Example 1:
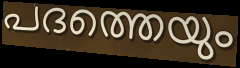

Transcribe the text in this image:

പദത്തെയും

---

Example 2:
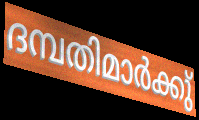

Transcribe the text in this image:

ദമ്പതിമാർക്കു്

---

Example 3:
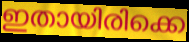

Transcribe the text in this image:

ഇതായിരിക്കെ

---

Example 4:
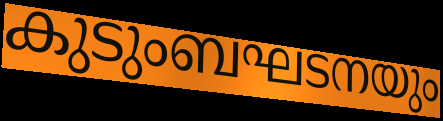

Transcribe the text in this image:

കുടുംബഘടനയും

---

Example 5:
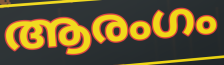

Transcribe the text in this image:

ആരംഗം